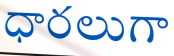
ధారలుగా